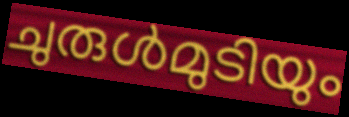
ചുരുൾമുടിയും